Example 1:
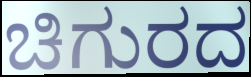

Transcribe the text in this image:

ಚಿಗುರದ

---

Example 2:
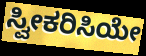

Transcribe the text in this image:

ಸ್ವೀಕರಿಸಿಯೇ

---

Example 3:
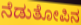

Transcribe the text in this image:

ನೆಡುತೋಪಿನ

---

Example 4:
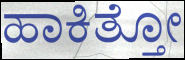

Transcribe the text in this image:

ಹಾಕಿತ್ತೋ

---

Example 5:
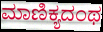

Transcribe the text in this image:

ಮಾಣಿಕ್ಯದಂಥ